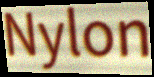
Nylon